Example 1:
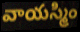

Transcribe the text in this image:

వాయస్మిం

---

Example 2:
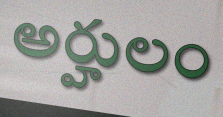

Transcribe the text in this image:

అర్హులం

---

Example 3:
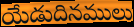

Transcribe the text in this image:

యేడుదినములు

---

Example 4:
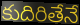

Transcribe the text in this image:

కుదిరితేనే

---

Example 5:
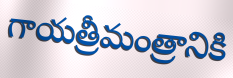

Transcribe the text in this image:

గాయత్రీమంత్రానికి